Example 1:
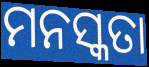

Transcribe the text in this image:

ମନସ୍କତା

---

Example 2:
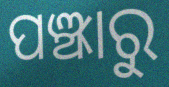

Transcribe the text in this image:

ପଞ୍ଝାରୁ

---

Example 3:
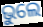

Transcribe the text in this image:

ଭୁଲେ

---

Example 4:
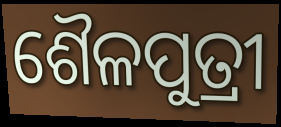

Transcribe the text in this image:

ଶୈଳପୁତ୍ରୀ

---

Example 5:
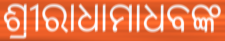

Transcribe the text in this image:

ଶ୍ରୀରାଧାମାଧବଙ୍କ